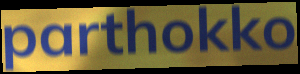
parthokko